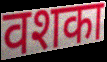
वशका